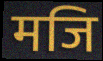
मजि